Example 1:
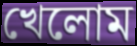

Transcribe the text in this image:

খেলোম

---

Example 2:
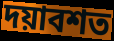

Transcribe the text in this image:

দয়াবশত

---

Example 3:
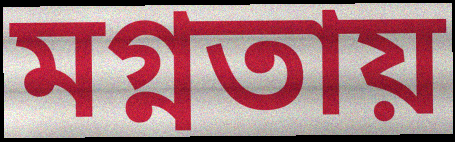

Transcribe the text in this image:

মগ্নতায়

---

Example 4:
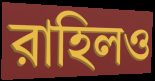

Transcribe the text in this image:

রাহিলও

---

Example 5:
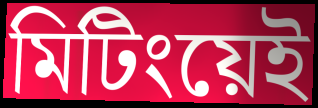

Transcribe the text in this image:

মিটিংয়েই